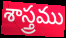
శాస్త్రము